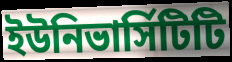
ইউনিভার্সিটিটি